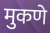
मुकणे